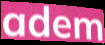
adem